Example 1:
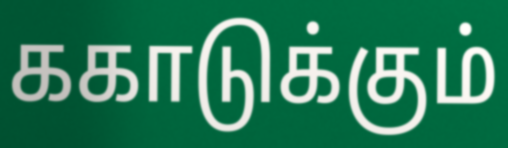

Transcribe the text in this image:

ககாடுக்கும்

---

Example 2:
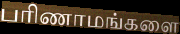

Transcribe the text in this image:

பரிணாமங்களை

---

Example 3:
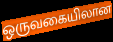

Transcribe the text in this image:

ஒருவகையிலான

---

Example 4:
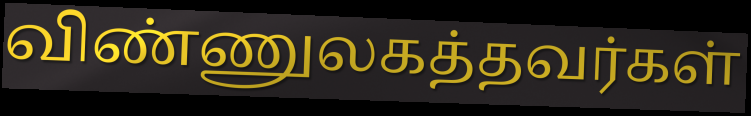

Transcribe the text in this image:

விண்ணுலகத்தவர்கள்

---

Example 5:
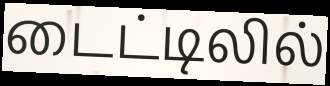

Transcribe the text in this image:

டைட்டிலில்